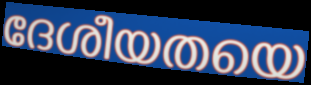
ദേശീയതയെ